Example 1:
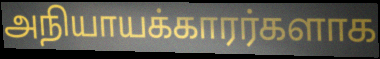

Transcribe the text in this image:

அநியாயக்காரர்களாக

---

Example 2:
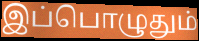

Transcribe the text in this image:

இப்பொழுதும்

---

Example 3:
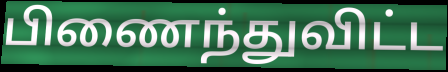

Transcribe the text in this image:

பிணைந்துவிட்ட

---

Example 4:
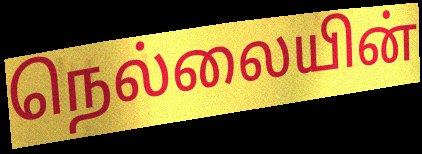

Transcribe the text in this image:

நெல்லையின்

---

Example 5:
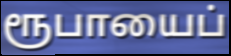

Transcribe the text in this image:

ரூபாயைப்